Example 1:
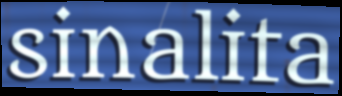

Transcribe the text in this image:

sinalita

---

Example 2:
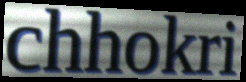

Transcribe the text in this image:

chhokri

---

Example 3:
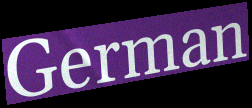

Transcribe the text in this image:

German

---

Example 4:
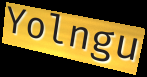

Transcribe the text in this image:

Yolngu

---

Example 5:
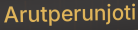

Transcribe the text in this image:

Arutperunjoti